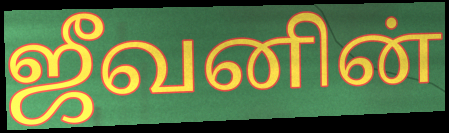
ஜீவனின்